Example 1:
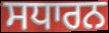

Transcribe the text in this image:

ਸਧਾਰਨ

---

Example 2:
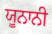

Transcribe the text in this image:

ਯੂਨਾਨੀ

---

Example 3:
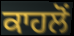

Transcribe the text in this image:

ਕਾਹਲੋਂ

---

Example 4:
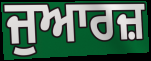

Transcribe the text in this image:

ਜੁਆਰਜ਼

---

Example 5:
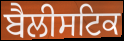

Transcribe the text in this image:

ਬੈਲੀਸਟਿਕ